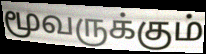
மூவருக்கும்